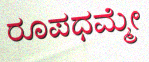
ರೂಪಧಮ್ಮೇ